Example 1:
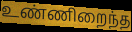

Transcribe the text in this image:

உண்ணிறைந்த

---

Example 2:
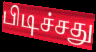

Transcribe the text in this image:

பிடிச்சது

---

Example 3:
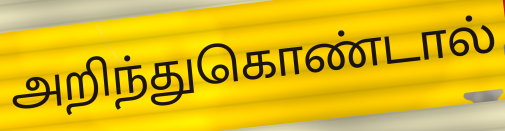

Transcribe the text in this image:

அறிந்துகொண்டால்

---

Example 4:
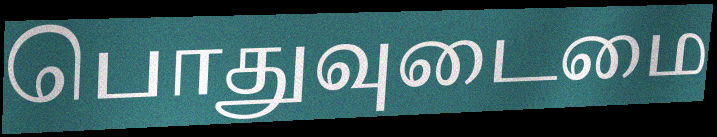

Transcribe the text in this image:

பொதுவுடைமை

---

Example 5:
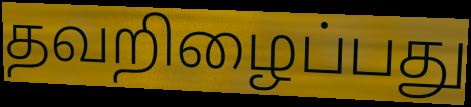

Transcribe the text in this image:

தவறிழைப்பது